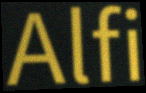
Alfi